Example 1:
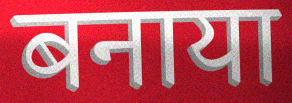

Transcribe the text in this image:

बनाया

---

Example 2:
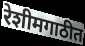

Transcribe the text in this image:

रेशीमगाठीत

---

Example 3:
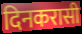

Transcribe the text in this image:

दिनकरासी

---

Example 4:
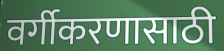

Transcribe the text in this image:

वर्गीकरणासाठी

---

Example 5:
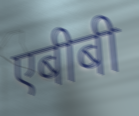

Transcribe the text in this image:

एबीबी